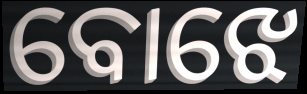
ବୋଝେ